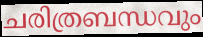
ചരിത്രബന്ധവും